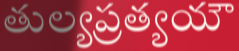
తుల్యప్రత్యయౌ